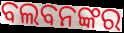
ବଲବନଙ୍କର